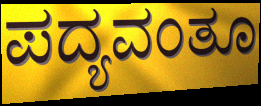
ಪದ್ಯವಂತೂ